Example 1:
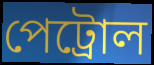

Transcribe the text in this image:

পেট্রোল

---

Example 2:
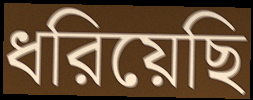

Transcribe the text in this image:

ধরিয়েছি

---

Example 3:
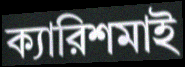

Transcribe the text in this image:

ক্যারিশমাই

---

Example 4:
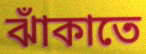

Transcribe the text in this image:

ঝাঁকাতে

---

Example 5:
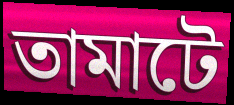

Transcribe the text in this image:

তামাটে